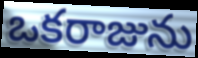
ఒకరాజును